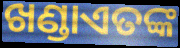
ଖଣ୍ଡାଏତଙ୍କ